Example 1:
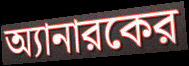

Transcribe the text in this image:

অ্যানারকের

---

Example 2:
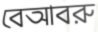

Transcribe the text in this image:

বেআবরু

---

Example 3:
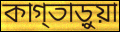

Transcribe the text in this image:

কাগ্‌তাড়ুয়া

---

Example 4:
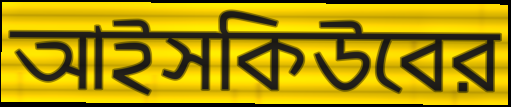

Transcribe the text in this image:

আইসকিউবের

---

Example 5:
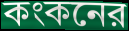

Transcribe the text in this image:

কংকনের